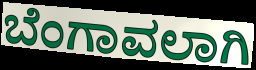
ಬೆಂಗಾವಲಾಗಿ